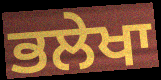
ਭਲੇਖਾ